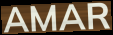
AMAR